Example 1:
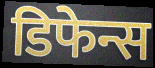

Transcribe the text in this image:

डिफेन्स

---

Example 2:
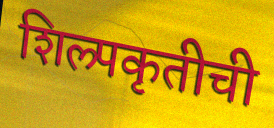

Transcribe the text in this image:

शिल्पकृतीची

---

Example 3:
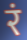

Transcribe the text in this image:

रं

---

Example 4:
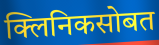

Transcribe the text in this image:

क्लिनिकसोबत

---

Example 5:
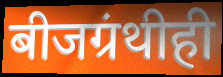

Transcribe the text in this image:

बीजग्रंथीही